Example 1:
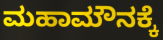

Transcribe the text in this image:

ಮಹಾಮೌನಕ್ಕೆ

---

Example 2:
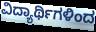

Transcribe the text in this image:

ವಿದ್ಯಾರ್ಥಿಗಳಿಂದ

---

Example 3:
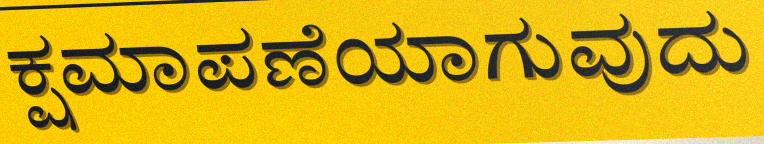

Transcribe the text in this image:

ಕ್ಷಮಾಪಣೆಯಾಗುವುದು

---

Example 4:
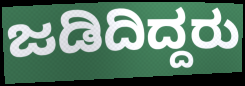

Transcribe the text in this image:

ಜಡಿದಿದ್ದರು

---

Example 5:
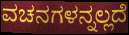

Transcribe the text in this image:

ವಚನಗಳನ್ನಲ್ಲದೆ